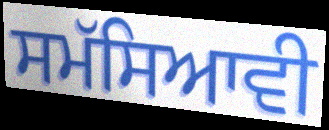
ਸਮੱਸਿਆਵੀ